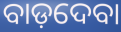
ବାଡ଼ଦେବା